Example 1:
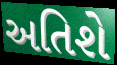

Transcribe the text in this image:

અતિશે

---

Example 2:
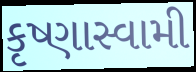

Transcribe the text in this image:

કૃષ્ણાસ્વામી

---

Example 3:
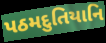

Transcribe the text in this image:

પઠમદુતિયાનિ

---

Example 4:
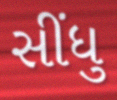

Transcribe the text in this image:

સીંધુ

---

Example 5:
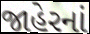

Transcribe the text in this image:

જાહેરનાં